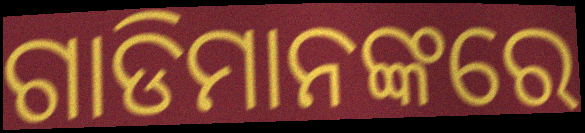
ଗାଡିମାନଙ୍କରେ